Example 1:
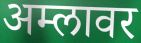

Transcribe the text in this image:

अम्लावर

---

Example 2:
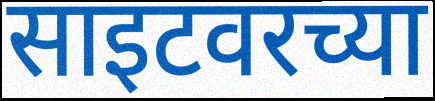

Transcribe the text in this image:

साइटवरच्या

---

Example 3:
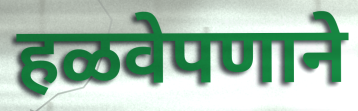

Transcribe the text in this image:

हळवेपणाने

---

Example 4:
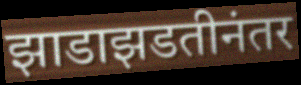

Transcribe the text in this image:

झाडाझडतीनंतर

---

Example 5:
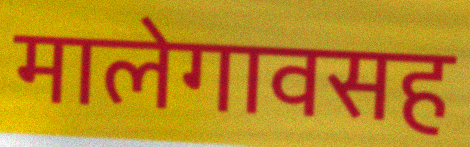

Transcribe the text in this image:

मालेगावसह